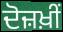
ਦੋਜ਼ਖ਼ੀਂ